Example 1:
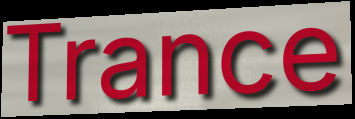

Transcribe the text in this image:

Trance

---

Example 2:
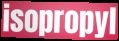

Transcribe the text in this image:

isopropyl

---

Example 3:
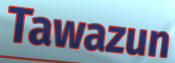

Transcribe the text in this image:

Tawazun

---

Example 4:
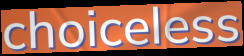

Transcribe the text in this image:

choiceless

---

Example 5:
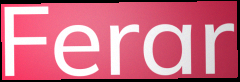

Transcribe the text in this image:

Ferar